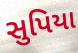
સુપિયા